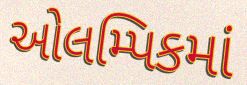
ઓલમ્પિકમાં